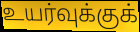
உயர்வுக்குக்